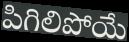
పిగిలిపోయే